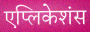
एप्लिकेशंस